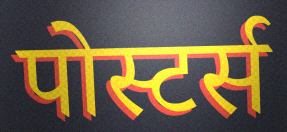
पोस्टर्स